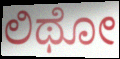
ಲಿಥೋ